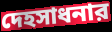
দেহসাধনার